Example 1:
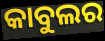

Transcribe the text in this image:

କାବୁଲର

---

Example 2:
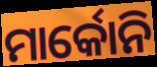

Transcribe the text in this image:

ମାର୍କୋନି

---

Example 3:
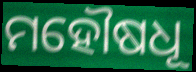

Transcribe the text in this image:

ମହୌଷଧୂ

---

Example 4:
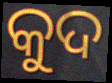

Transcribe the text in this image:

କୁଦ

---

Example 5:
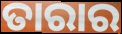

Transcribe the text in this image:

ତାରାର